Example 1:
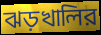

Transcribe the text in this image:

ঝড়খালির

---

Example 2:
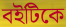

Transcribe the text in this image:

বইটিকে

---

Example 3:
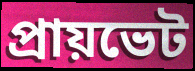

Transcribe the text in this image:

প্রায়ভেট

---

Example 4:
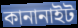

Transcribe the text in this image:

কানানাইট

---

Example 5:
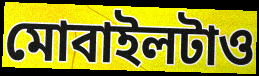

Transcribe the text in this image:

মোবাইলটাও